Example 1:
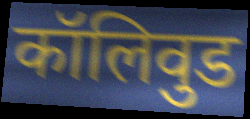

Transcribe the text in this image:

कॉलिवुड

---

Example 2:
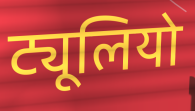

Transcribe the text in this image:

ट्यूलियो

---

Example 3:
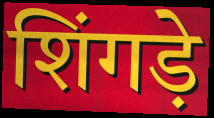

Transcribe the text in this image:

शिंगड़े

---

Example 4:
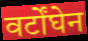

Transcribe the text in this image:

वर्टोंघेन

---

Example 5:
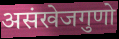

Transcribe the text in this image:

असंखेजगुणो